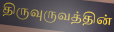
திருவுருவத்தின்